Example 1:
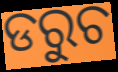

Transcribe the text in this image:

ଡରୁଚ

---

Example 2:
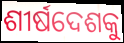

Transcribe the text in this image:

ଶୀର୍ଷଦେଶକୁ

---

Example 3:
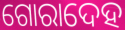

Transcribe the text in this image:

ଗୋରାଦେହ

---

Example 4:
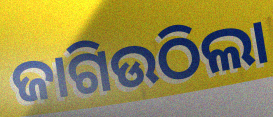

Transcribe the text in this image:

ଜାଗିଉଠିଲା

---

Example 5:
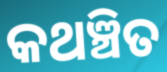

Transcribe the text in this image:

କଥଞ୍ଚିତ